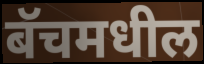
बॅचमधील